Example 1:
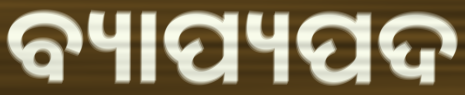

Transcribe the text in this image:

ବ୍ୟାପ୍ୟପଦ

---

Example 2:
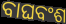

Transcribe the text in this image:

ବାଘବଂଶ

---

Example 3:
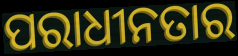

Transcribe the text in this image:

ପରାଧୀନତାର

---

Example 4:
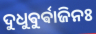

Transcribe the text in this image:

ଦୁଧୁଵୁର୍ଵାଜିନଃ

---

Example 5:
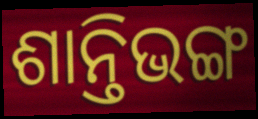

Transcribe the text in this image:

ଶାନ୍ତିଭଙ୍ଗ